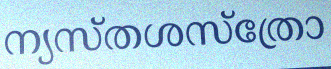
ന്യസ്തശസ്ത്രോ